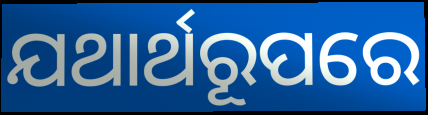
ଯଥାର୍ଥରୂପରେ